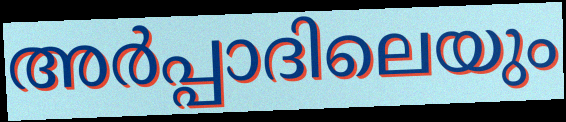
അർപ്പാദിലെയും